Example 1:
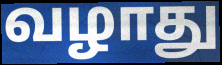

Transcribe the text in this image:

வழாது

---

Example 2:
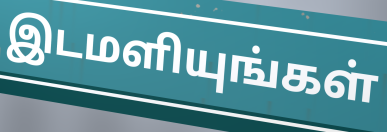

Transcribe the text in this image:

இடமளியுங்கள்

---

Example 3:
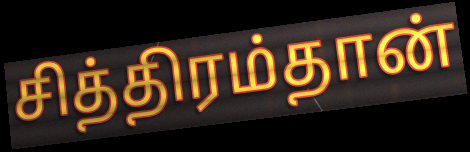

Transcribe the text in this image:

சித்திரம்தான்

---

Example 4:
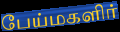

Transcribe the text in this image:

பேய்மகளிர்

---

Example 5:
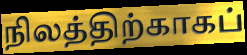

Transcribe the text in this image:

நிலத்திற்காகப்